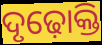
ଦୃଢ଼ୋକ୍ତି